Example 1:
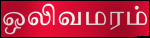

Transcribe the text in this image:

ஒலிவமரம்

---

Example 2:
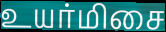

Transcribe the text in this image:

உயர்மிசை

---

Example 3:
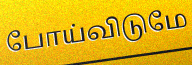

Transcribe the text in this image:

போய்விடுமே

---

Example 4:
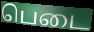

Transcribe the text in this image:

பெடை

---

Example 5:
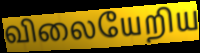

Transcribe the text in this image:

விலையேறிய